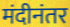
मंदीनंतर